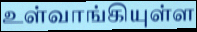
உள்வாங்கியுள்ள